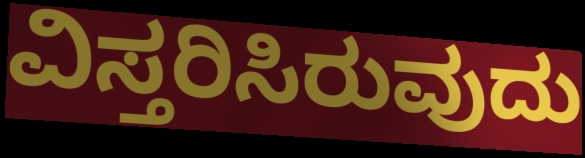
ವಿಸ್ತರಿಸಿರುವುದು